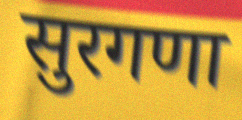
सुरगणा